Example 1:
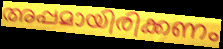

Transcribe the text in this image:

അപ്പമായിരിക്കണം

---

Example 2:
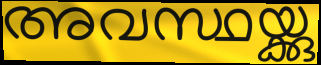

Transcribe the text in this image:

അവസ്ഥയ്ക്കു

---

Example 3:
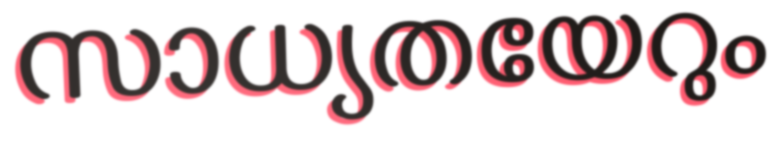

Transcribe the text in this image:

സാധ്യതയേറും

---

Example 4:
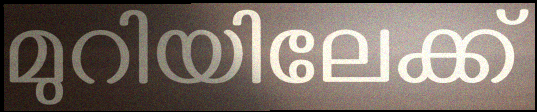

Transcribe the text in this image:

മുറിയിലേക്ക്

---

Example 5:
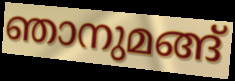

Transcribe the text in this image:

ഞാനുമങ്ങ്